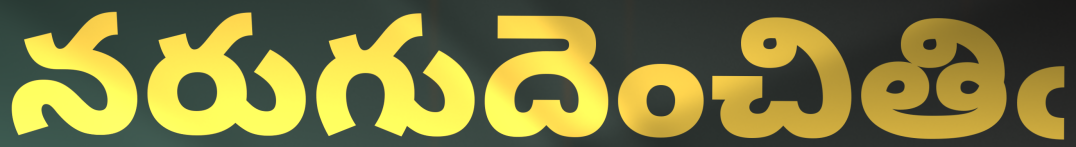
నరుగుదెంచితిఁ